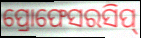
ପ୍ରୋଫେସରସିପ୍